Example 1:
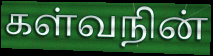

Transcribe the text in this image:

கள்வநின்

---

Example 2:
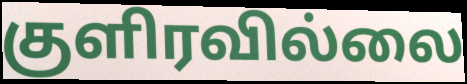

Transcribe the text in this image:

குளிரவில்லை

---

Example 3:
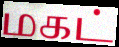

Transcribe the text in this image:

மகட்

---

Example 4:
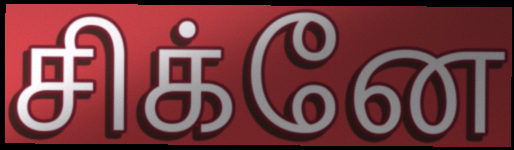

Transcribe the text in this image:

சிக்னே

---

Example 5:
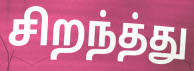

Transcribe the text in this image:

சிறந்த்து